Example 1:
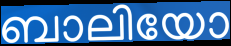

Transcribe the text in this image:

ബാലിയോ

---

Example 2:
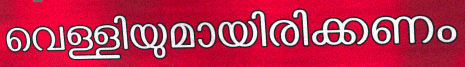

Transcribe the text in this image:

വെള്ളിയുമായിരിക്കണം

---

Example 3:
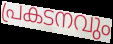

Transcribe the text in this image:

പ്രകടനവും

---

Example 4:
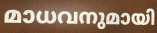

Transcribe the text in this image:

മാധവനുമായി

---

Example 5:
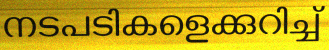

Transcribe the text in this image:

നടപടികളെക്കുറിച്ച്